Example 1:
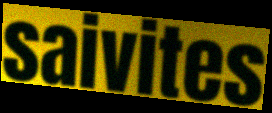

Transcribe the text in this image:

saivites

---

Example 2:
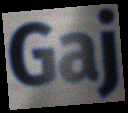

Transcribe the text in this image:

Gaj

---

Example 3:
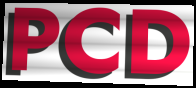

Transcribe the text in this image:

PCD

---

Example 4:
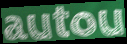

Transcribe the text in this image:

autou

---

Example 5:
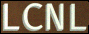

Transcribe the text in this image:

LCNL